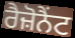
ਰੈਜ਼ੋਨੈਂਟ